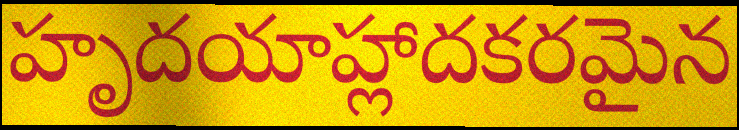
హృదయాహ్లాదకరమైన